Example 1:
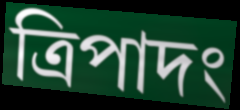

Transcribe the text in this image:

ত্রিপাদং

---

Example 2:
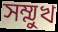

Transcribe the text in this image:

সম্মুখ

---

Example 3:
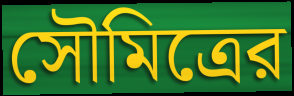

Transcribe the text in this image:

সৌমিত্রের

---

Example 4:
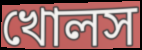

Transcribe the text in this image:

খোলস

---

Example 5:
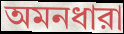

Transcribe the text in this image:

অমনধারা